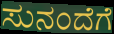
ಸುನಂದೆಗೆ